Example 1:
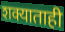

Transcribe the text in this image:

शक्याताही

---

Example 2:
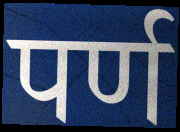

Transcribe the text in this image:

पर्ण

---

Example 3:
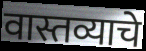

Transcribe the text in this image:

वास्तव्याचे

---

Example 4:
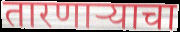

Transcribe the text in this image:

तारणाऱ्याचा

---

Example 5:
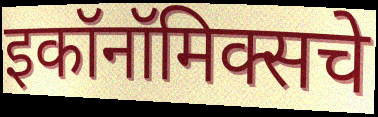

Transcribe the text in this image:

इकॉनॉमिक्सचे